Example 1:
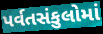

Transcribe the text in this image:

પર્વતસંકુલોમાં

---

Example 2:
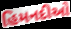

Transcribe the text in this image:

હિમનદીઓ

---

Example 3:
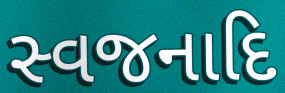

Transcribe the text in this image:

સ્વજનાદિ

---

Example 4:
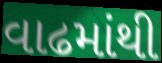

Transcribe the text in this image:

વાઢમાંથી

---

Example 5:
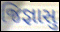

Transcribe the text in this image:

જિજ્ઞાસુ